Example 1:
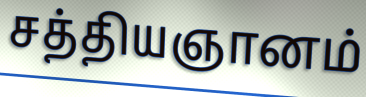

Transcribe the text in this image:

சத்தியஞானம்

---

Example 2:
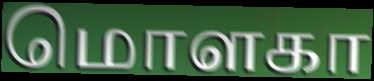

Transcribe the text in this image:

மொளகா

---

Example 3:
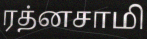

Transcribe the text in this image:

ரத்னசாமி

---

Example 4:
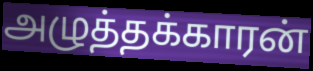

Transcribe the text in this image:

அழுத்தக்காரன்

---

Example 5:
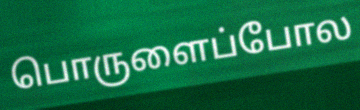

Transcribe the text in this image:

பொருளைப்போல